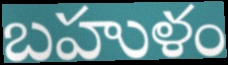
బహుళం